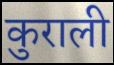
कुराली